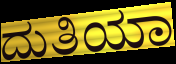
ದುತಿಯಾ